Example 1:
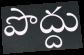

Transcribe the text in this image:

పొద్దు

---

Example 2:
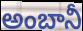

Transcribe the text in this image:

అంబానీ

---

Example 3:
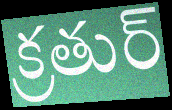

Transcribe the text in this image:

క్రతుర్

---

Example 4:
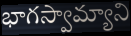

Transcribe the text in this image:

భాగస్వామ్యాని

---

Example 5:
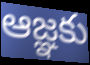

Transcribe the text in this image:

ఆజ్ఞకు